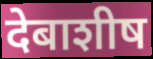
देबाशीष